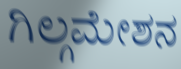
ಗಿಲ್ಗಮೇಶನ